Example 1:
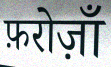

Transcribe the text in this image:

फ़रोज़ाँ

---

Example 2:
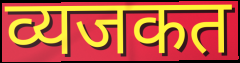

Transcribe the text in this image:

व्यजकत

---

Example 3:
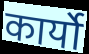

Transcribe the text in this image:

कार्यो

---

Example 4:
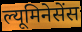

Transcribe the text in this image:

ल्यूमिनेसेंस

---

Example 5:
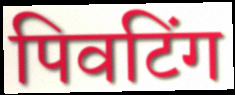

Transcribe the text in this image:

पिवटिंग